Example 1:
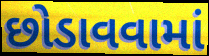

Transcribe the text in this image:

છોડાવવામાં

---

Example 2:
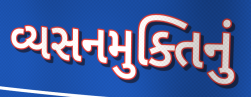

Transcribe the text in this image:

વ્યસનમુક્તિનું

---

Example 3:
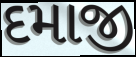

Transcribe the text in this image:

દમાજી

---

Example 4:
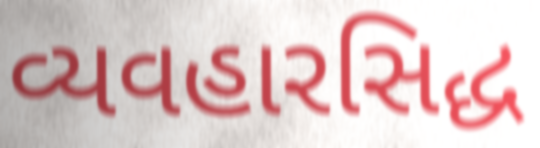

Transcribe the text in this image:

વ્યવહારસિદ્ધ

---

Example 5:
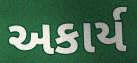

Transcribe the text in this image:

અકાર્ય